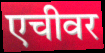
एचीवर